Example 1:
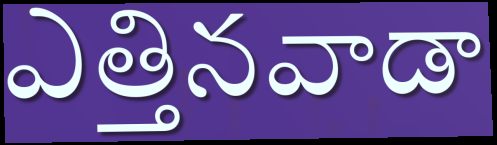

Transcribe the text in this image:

ఎత్తినవాడా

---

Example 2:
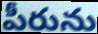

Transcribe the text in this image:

పీరును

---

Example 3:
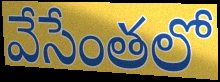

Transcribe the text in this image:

వేసేంతలో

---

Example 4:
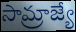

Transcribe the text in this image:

సామ్రాజ్యే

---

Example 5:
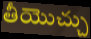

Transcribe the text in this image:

తీయొచ్చు